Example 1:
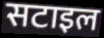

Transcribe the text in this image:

सटाइल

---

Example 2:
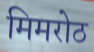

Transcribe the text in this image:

मिमरोठ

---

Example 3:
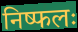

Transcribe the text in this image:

निष्फलः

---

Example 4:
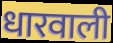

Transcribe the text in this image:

धारवाली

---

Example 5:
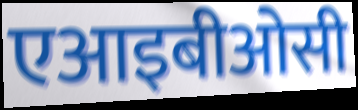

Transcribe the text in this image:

एआइबीओसी